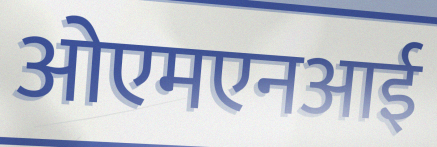
ओएमएनआई